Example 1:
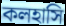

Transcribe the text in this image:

কলহাসি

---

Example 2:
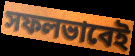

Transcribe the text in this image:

সফলভাবেই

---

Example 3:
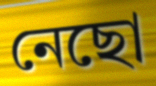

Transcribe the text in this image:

নেছো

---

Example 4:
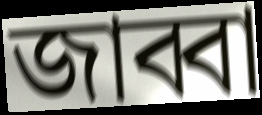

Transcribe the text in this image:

জাব্বা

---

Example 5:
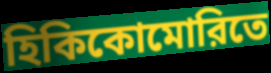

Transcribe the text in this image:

হিকিকোমোরিতে